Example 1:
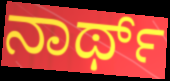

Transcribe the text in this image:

ನಾರ್ಥ್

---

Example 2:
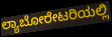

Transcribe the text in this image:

ಲ್ಯಾಬೋರೇಟರಿಯಲ್ಲಿ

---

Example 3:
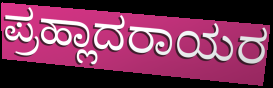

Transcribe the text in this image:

ಪ್ರಹ್ಲಾದರಾಯರ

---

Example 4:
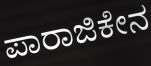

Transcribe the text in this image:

ಪಾರಾಜಿಕೇನ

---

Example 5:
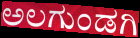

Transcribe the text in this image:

ಅಲಗುಂಡಗಿ